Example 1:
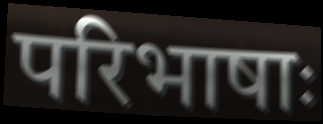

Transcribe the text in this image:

परिभाषाः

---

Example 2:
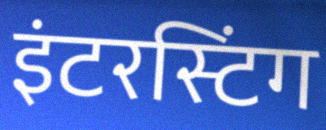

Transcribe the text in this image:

इंटरस्टिंग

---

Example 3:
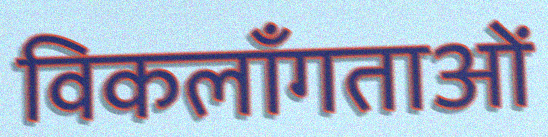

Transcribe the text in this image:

विकलाँगताओं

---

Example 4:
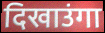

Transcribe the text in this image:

दिखाउंगा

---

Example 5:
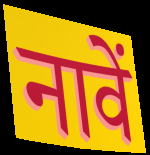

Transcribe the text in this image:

नावें